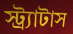
স্ট্র্যাটাস